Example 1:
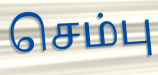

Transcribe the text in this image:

செம்பு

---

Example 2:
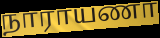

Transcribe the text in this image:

நாராயணா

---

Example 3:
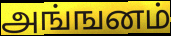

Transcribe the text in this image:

அங்ஙனம்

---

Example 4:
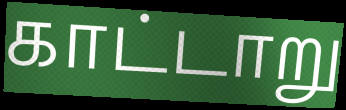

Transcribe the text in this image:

காட்டாறு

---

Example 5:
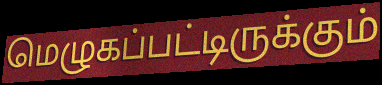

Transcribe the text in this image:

மெழுகப்பட்டிருக்கும்